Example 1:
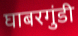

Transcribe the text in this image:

घाबरगुंडी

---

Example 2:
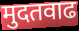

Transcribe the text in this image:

मुदतवाढ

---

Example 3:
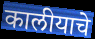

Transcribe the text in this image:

कालीयाचे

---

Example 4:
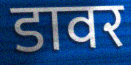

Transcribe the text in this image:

डावर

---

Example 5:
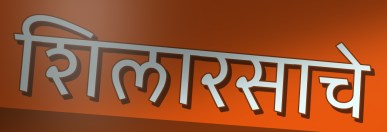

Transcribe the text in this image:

शिलारसाचे